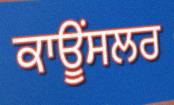
ਕਾਊਂਸਲਰ